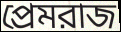
প্রেমরাজ